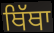
ਥਿੱਥਾ